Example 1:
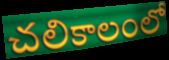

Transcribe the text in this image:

చలికాలంలో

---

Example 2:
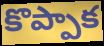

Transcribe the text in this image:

కొప్పాక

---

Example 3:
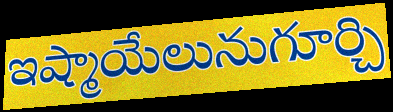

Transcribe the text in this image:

ఇష్మాయేలునుగూర్చి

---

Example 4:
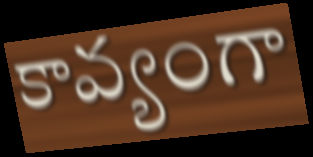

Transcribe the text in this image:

కావ్యంగా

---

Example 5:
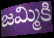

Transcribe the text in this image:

జమ్మికి